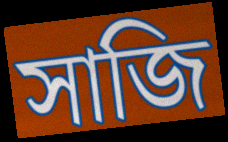
সাজি